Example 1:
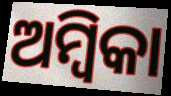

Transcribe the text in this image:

ଅମ୍ବିକା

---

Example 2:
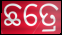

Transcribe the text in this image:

ଛତ୍ରେ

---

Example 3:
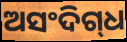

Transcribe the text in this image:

ଅସଂଦିଗ୍‌ଧ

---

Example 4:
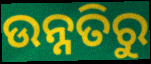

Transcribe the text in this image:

ଉନ୍ନତିରୁ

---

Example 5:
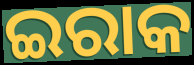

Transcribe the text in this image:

ଇରାକ